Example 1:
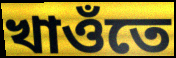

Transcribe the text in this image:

খাওঁতে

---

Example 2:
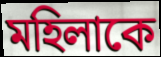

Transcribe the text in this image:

মহিলাকে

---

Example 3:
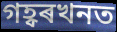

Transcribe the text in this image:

গহ্বৰখনত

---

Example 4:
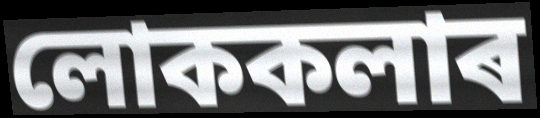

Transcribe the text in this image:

লোককলাৰ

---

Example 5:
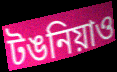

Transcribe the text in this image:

টঙনিয়াও